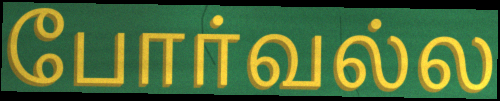
போர்வல்ல